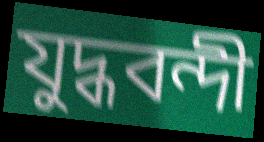
যুদ্ধবন্দী